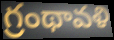
గ్రంథావళి